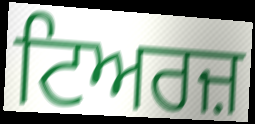
ਟਿਅਰਜ਼